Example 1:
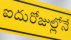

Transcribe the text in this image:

ఐదురోజుల్లోనే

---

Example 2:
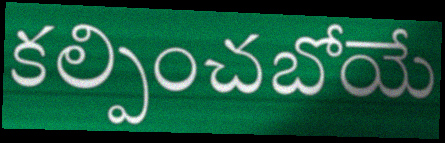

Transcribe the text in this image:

కల్పించబోయే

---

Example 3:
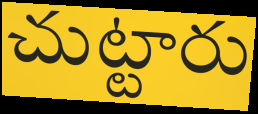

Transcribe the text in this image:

చుట్టారు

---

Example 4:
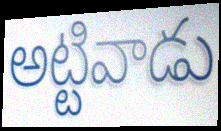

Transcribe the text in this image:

అట్టివాడు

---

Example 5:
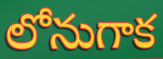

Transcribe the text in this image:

లోనుగాక